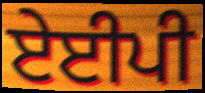
ਏਈਪੀ